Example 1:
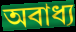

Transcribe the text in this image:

অবাধ্য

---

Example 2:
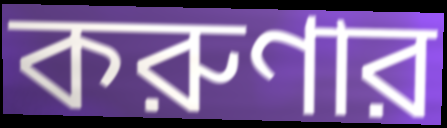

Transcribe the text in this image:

করুণার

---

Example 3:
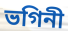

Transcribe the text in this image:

ভগিনী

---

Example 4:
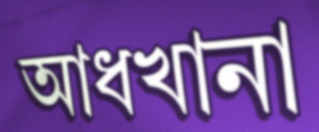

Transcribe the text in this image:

আধখানা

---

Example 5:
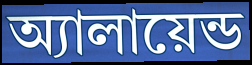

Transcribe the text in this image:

অ্যালায়েন্ড